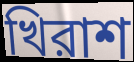
খিরাশ